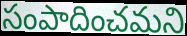
సంపాదించమని